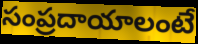
సంప్రదాయాలంటే